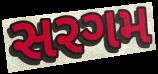
સરગમ